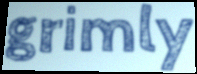
grimly